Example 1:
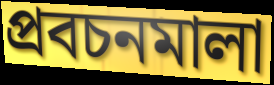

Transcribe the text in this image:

প্রবচনমালা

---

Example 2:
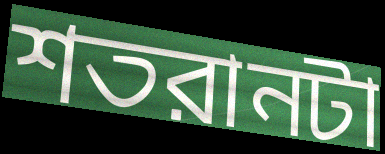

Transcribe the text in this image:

শতরানটা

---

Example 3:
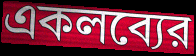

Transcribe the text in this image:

একলব্যের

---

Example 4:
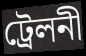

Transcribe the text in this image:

ট্রেলনী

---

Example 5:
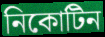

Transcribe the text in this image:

নিকোটিন